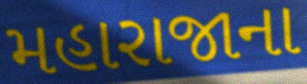
મહારાજાના